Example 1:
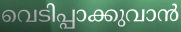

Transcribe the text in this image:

വെടിപ്പാക്കുവാൻ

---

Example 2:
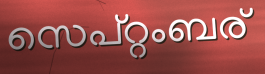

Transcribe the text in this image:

സെപ്റ്റംബര്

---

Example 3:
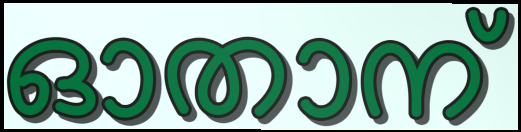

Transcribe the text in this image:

ഓതാന്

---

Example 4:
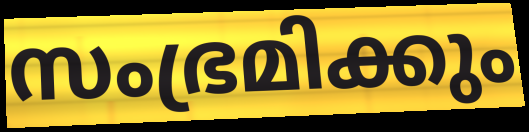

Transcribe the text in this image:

സംഭ്രമിക്കും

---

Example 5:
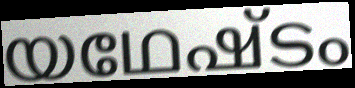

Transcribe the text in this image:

യഥേഷ്‌ടം